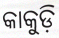
କାକୁଡ଼ି